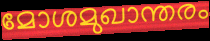
മോശമുഖാന്തരം